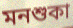
মনশুকা